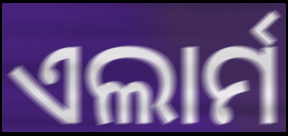
ଏଲାର୍ମ